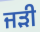
ਜੜੀ